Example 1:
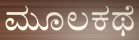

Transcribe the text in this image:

ಮೂಲಕಥೆ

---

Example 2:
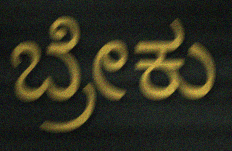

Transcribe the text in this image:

ಬ್ರೇಕು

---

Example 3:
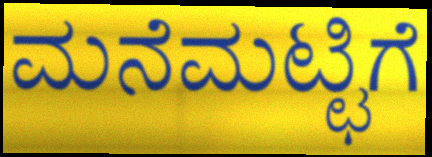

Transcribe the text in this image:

ಮನೆಮಟ್ಟಿಗೆ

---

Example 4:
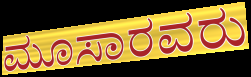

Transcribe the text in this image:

ಮೂಸಾರವರು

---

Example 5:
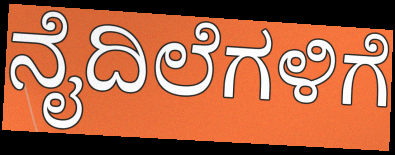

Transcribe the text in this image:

ನೈದಿಲೆಗಳಿಗೆ